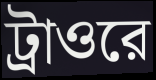
ট্রাওরে